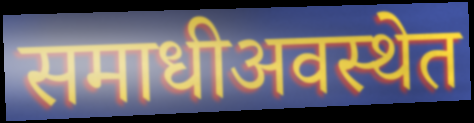
समाधीअवस्थेत